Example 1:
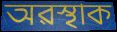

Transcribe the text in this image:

অৱস্থাক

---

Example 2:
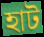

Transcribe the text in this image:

হাট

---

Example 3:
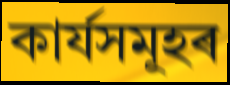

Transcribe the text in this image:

কাৰ্যসমূহৰ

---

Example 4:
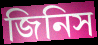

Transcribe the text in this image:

জিনিস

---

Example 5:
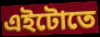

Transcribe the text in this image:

এইটোতে